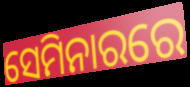
ସେମିନାରରେ